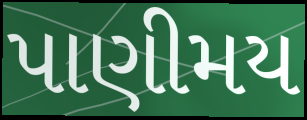
પાણીમય